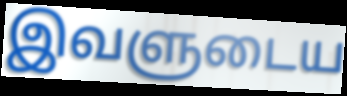
இவளுடைய